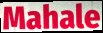
Mahale